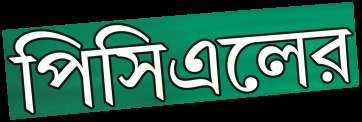
পিসিএলের